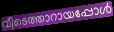
വീടെത്താറായപ്പോൾ